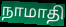
நாமாதி